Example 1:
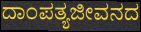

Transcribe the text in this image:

ದಾಂಪತ್ಯಜೀವನದ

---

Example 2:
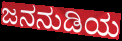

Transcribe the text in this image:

ಜನನುಡಿಯ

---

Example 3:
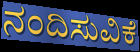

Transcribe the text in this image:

ನಂದಿಸುವಿಕೆ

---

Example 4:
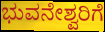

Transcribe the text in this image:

ಭುವನೇಶ್ವರಿಗೆ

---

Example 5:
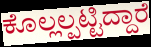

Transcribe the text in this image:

ಕೊಲ್ಲಲ್ಪಟ್ಟಿದ್ದಾರೆ